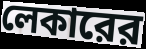
লেকারের